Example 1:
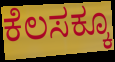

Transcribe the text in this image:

ಕೆಲಸಕ್ಕೂ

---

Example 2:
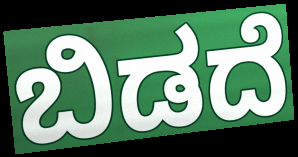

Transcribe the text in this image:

ಬಿಡದೆ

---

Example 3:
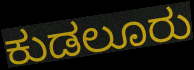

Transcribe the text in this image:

ಕುಡಲೂರು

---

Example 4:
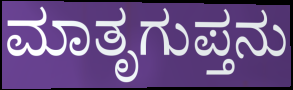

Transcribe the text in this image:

ಮಾತೃಗುಪ್ತನು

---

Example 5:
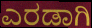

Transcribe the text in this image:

ಎರಡಾಗಿ